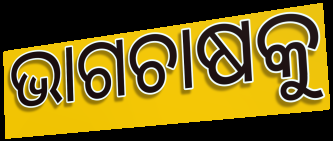
ଭାଗଚାଷକୁ